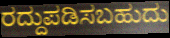
ರದ್ದುಪಡಿಸಬಹುದು